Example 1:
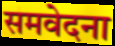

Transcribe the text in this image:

समवेदना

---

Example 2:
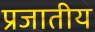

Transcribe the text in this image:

प्रजातीय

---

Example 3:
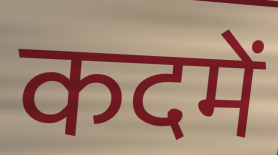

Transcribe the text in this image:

कदमें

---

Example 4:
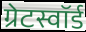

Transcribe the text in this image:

ग्रेटस्वॉर्ड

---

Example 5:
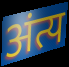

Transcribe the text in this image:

अंत्य